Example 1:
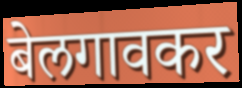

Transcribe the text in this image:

बेलगावकर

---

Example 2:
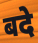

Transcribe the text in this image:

बदे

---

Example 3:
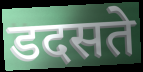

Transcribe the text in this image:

डदसते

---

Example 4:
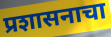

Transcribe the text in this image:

प्रशासनाचा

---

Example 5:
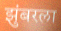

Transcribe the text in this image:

झुंबरला